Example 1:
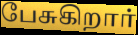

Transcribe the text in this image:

பேசுகிறார்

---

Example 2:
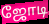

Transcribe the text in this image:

ஜோடி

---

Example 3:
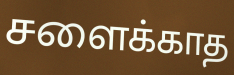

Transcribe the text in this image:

சளைக்காத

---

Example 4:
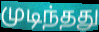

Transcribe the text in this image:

முடிந்தது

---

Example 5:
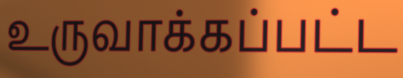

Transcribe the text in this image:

உருவாக்கப்பட்ட